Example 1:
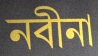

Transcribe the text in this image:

নবীনা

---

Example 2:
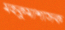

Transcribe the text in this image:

মহকুমাশাসক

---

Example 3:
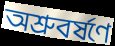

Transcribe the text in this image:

অশ্রুবর্ষণে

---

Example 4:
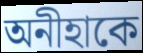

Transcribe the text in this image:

অনীহাকে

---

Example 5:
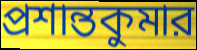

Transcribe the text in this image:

প্রশান্তকুমার